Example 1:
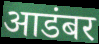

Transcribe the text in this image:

आडंबर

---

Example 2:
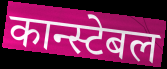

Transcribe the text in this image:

कान्स्टेबल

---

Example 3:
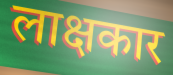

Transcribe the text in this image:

लाक्षकार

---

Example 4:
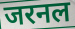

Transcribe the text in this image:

जरनल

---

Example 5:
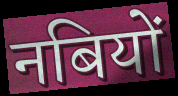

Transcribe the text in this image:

नबियों